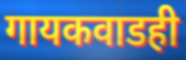
गायकवाडही